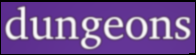
dungeons